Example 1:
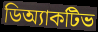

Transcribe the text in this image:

ডিঅ্যাকটিভ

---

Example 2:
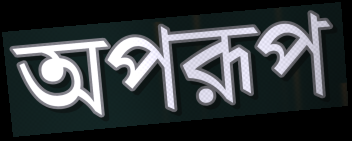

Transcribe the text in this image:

অপরূপ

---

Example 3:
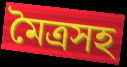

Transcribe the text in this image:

মৈত্রসহ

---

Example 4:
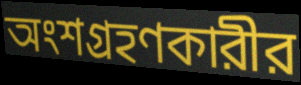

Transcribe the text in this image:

অংশগ্রহণকারীর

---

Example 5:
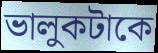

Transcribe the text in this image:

ভালুকটাকে